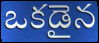
ఒకడైన